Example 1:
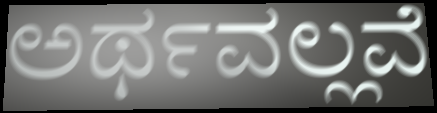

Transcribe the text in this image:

ಅರ್ಥವಲ್ಲವೆ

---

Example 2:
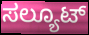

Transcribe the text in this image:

ಸಲ್ಯೂಟ್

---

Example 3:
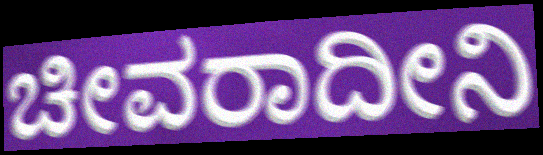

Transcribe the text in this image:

ಚೀವರಾದೀನಿ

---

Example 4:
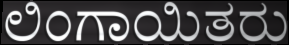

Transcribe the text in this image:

ಲಿಂಗಾಯಿತರು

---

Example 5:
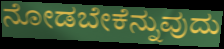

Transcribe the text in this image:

ನೋಡಬೇಕೆನ್ನುವುದು